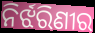
ନିର୍ଝରିଣୀର